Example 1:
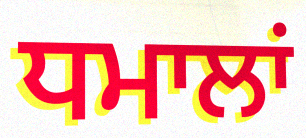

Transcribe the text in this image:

ਧਮਾਲਾਂ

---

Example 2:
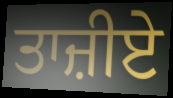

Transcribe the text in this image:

ਤਾਜ਼ੀਏ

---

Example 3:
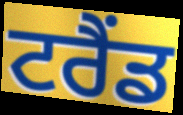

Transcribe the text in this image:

ਟਰੈਂਡ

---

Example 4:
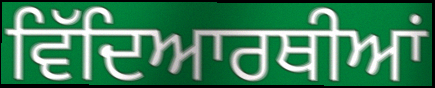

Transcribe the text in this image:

ਵਿੱਦਿਆਰਥੀਆਂ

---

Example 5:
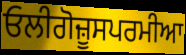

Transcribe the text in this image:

ਓਲੀਗੋਜ਼ੂਸਪਰਮੀਆ